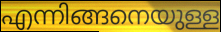
എന്നിങ്ങനെയുള്ള